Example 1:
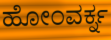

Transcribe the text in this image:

ಹೋಂವರ್ಕ್ನ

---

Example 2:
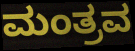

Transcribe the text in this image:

ಮಂತ್ರವ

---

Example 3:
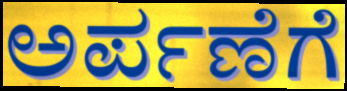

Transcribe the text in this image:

ಅರ್ಪಣೆಗೆ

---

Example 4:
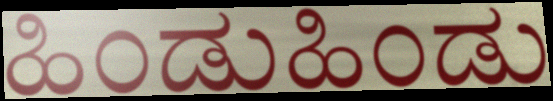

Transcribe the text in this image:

ಹಿಂಡುಹಿಂಡು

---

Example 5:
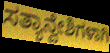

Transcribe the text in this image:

ಸತ್ಯಾನ್ವೇಶಿಗಳಾಗಿ